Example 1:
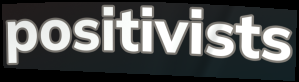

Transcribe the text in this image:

positivists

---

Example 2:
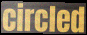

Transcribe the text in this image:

circled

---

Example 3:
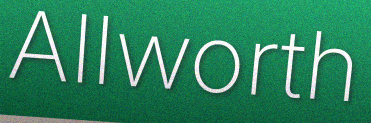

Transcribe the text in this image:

Allworth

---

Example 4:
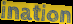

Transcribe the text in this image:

ination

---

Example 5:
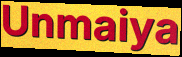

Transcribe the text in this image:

Unmaiya